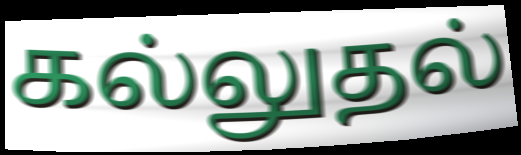
கல்லுதல்